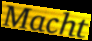
Macht